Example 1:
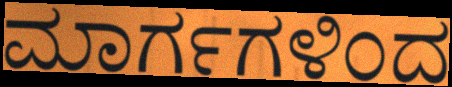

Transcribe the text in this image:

ಮಾರ್ಗಗಳಿಂದ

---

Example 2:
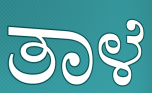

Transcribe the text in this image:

ತಾಳೆ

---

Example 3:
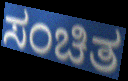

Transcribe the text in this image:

ಸಂಚಿತ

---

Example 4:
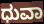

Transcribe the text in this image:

ಧುವಾ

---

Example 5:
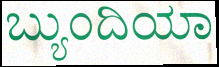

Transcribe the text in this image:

ಬ್ಯುಂದಿಯಾ